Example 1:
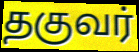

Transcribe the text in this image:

தகுவர்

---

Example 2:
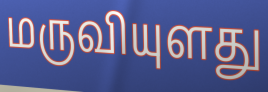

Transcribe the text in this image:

மருவியுளது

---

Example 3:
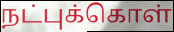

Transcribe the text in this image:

நட்புக்கொள்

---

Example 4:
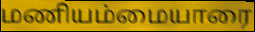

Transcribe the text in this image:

மணியம்மையாரை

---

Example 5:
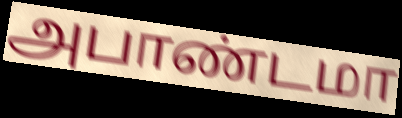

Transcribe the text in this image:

அபாண்டமா